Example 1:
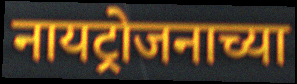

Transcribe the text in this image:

नायट्रोजनाच्या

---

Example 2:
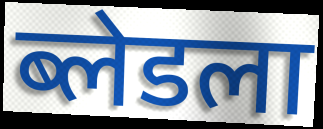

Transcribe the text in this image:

ब्लेडला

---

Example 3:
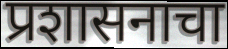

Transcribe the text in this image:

प्रशासनाचा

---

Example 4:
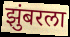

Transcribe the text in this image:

झुंबरला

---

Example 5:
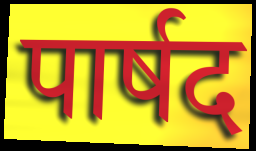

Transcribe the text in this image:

पार्षद